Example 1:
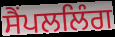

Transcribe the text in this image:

ਸੈਂਪਲਲਿੰਗ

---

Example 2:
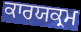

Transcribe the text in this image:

ਕਾਰਯਕ੍ਰਮ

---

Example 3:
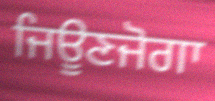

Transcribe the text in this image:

ਜਿਊਣਜੋਗਾ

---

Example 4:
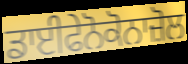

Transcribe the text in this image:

ਡਾਈਫੇਨੋਕੋਨਾਜ਼ੋਲ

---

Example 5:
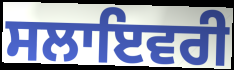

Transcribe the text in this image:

ਸਲਾਇਵਰੀ